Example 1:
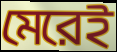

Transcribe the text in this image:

মেরেই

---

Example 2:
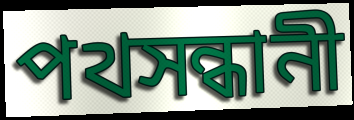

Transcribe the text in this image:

পথসন্ধানী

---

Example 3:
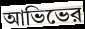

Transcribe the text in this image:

আভিভের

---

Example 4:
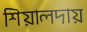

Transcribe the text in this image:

শিয়ালদায়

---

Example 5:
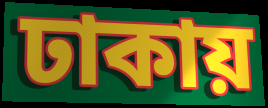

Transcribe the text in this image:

ঢাকায়